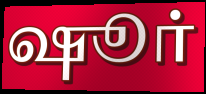
ஷூர்